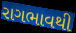
રાગભાવથી